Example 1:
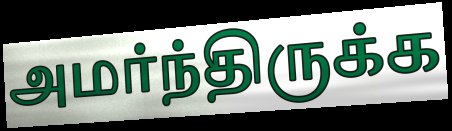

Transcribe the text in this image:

அமர்ந்திருக்க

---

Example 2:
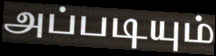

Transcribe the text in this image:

அப்படியும்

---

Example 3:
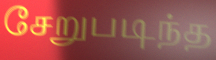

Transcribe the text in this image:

சேறுபடிந்த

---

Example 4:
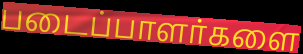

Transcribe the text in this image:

படைப்பாளர்களை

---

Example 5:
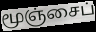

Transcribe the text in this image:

மூஞ்சைப்